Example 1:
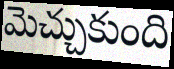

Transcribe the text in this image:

మెచ్చుకుంది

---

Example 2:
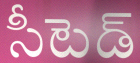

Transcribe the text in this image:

సీటెడ్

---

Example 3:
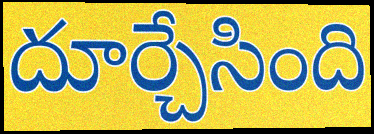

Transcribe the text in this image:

దూర్చేసింది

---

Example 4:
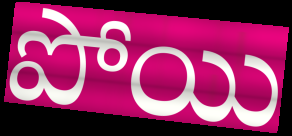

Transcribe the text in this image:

పోయి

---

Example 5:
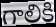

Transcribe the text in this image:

గాలికి